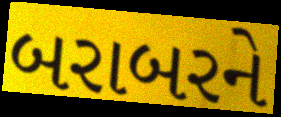
બરાબરને